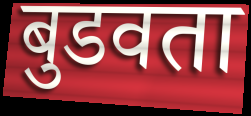
बुडवता